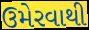
ઉમેરવાથી